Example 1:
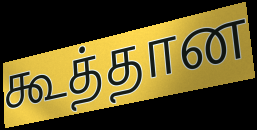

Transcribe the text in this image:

கூத்தான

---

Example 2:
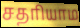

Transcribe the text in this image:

சதரியாம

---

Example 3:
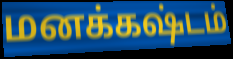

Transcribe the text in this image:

மனக்கஷ்டம்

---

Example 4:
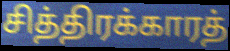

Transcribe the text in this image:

சித்திரக்காரத்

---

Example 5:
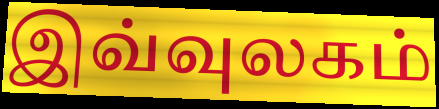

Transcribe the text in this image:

இவ்வுலகம்